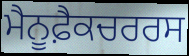
ਮੈਨੂਫ਼ੈਕਚਰਰਸ